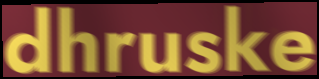
dhruske